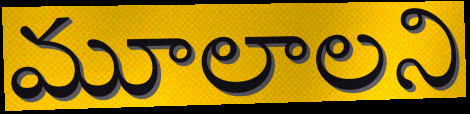
మూలాలని